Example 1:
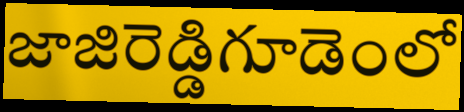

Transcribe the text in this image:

జాజిరెడ్డిగూడెంలో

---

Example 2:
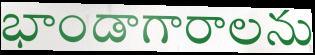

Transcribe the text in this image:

భాండాగారాలను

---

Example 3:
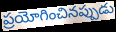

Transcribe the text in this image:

ప్రయోగించినప్పుడు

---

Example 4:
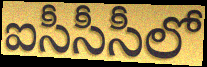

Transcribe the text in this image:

ఐసీసీసీలో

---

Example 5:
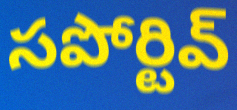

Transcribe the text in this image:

సపోర్టివ్